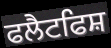
ਫਲੈਟਫਿਸ਼